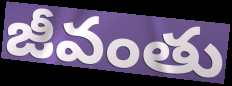
జీవంతు